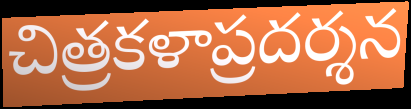
చిత్రకళాప్రదర్శన